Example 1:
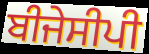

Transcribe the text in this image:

ਬੀਜੇਸੀਪੀ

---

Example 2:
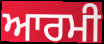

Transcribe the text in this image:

ਆਰਮੀ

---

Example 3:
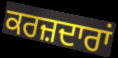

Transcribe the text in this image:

ਕਰਜ਼ਦਾਰਾਂ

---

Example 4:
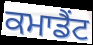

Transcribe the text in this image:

ਕਮਾਡੈਂਟ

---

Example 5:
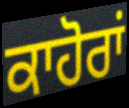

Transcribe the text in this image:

ਕਾਹੋਰਾਂ